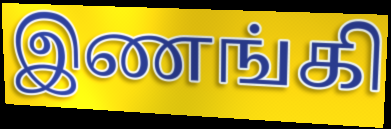
இணங்கி